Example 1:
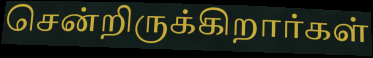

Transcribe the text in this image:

சென்றிருக்கிறார்கள்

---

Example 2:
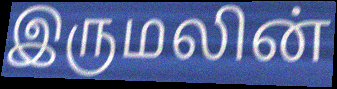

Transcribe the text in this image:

இருமலின்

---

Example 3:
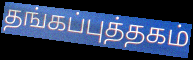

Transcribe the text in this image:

தங்கப்புத்தகம்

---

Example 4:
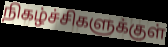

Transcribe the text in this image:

நிகழ்ச்சிகளுக்குள்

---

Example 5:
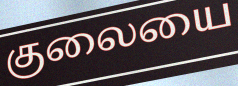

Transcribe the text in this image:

குலையை